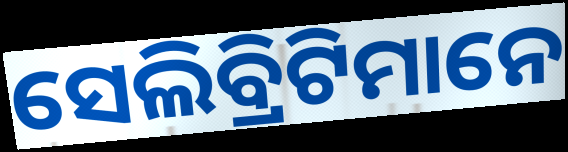
ସେଲିବ୍ରିଟିମାନେ